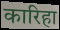
कारिहा